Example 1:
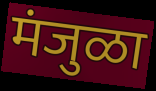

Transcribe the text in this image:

मंजुळा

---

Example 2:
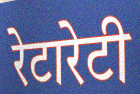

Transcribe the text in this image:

रेटारेटी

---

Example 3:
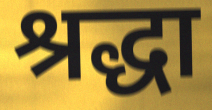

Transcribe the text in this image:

श्रद्धा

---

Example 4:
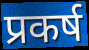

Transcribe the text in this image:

प्रकर्ष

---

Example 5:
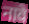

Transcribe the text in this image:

नावे